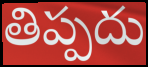
తిప్పదు